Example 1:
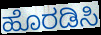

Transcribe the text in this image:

ಹೊರಡಿಸಿ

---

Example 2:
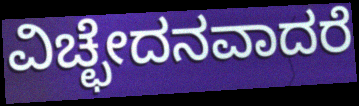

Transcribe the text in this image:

ವಿಚ್ಛೇದನವಾದರೆ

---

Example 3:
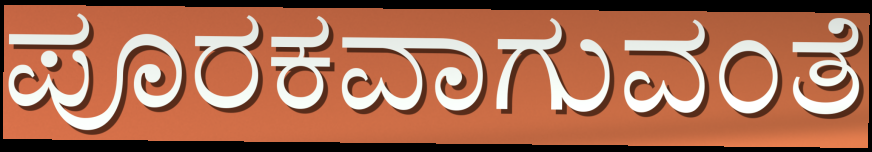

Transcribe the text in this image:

ಪೂರಕವಾಗುವಂತೆ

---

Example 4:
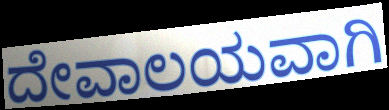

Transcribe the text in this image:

ದೇವಾಲಯವಾಗಿ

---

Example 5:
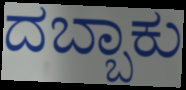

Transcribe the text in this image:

ದಬ್ಬಾಕು